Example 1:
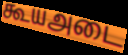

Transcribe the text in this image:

கூயஅடை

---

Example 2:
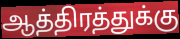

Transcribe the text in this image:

ஆத்திரத்துக்கு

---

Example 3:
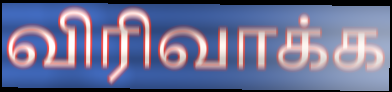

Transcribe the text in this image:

விரிவாக்க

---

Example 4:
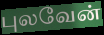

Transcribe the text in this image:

புலவேன்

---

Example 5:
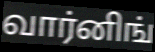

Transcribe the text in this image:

வார்னிங்